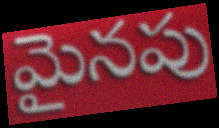
మైనపు